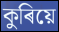
কুৰিয়ে